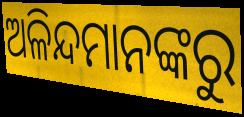
ଅଳିନ୍ଦମାନଙ୍କରୁ